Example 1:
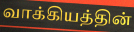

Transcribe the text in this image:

வாக்கியத்தின்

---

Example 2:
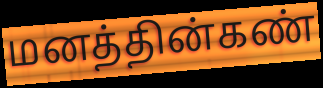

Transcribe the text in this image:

மனத்தின்கண்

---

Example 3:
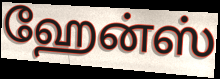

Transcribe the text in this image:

ஹேன்ஸ்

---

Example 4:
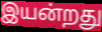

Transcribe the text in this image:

இயன்றது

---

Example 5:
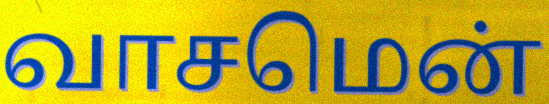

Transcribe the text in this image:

வாசமென்